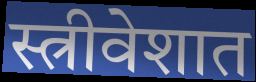
स्त्रीवेशात